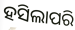
ହସିଲାପରି